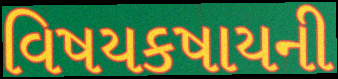
વિષયકષાયની